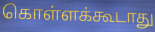
கொள்ளக்கூடாது